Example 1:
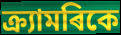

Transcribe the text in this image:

ক্ৰ্যামৰিকে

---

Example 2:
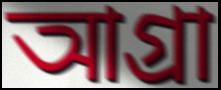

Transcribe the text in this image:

আগ্ৰা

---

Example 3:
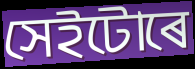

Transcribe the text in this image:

সেইটোৰে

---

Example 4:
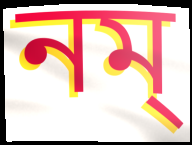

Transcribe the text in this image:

নম্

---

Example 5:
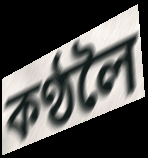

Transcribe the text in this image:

কণ্ঠলৈ